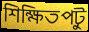
শিক্ষিতপটু